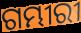
ଗମ୍ଭୀରୀ